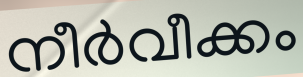
നീർവീക്കം